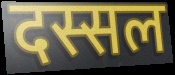
दस्सल